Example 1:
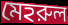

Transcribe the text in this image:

মেহরুল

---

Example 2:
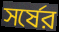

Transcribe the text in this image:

সর্ষের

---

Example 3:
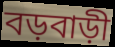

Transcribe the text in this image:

বড়বাড়ী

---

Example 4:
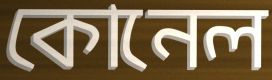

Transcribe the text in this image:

কোনেল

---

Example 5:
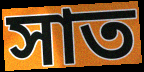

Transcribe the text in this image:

সাত